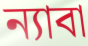
ন্যাবা